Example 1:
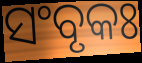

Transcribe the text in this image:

ସଂବୃକଃ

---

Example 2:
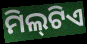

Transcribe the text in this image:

ମିଲ୍‌ଟିଏ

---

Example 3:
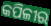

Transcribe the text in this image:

କପିଳୀର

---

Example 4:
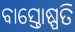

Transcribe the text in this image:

ବାସ୍ତୋଷ୍ପତି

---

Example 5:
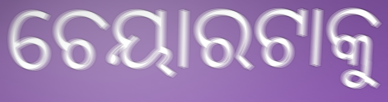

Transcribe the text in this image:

ଚେୟାରଟାକୁ